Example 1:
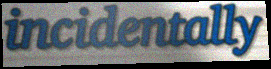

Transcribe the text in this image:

incidentally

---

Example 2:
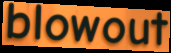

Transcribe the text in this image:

blowout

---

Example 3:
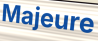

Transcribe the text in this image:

Majeure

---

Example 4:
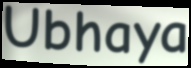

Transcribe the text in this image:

Ubhaya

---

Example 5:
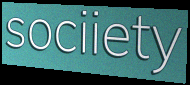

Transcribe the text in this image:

sociiety